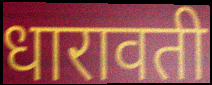
धारावती